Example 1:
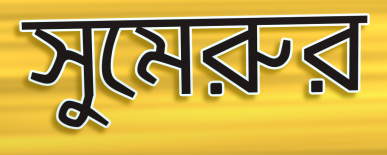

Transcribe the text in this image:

সুমেরুর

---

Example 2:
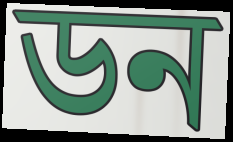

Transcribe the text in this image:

ডন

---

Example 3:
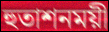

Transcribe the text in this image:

হুতাশনময়ী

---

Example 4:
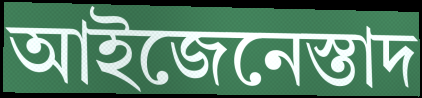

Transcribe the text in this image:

আইজেনেস্তাদ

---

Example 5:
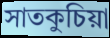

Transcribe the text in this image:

সাতকুচিয়া